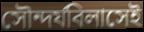
সৌন্দর্যবিলাসেই